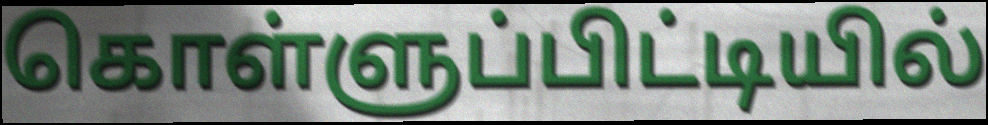
கொள்ளுப்பிட்டியில்